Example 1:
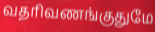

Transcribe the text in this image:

வதரிவணங்குதுமே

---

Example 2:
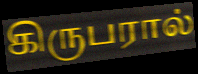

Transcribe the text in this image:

கிருபரால்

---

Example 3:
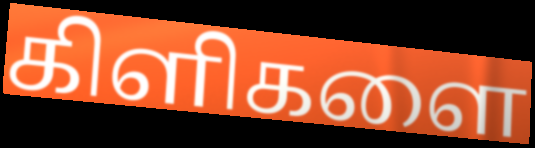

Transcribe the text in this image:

கிளிகளை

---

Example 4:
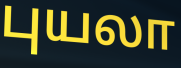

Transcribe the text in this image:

புயலா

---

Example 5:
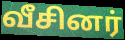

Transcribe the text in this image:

வீசினர்